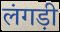
लंगड़ी